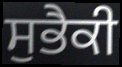
ਸੁਭੈਕੀ